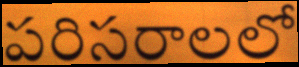
పరిసరాలలో